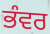
ਭੰਵਰ